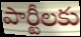
పార్టీలకు